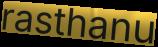
rasthanu